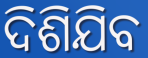
ଦିଶିଯିବ